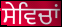
ਸੇਵਿਚਾਂ